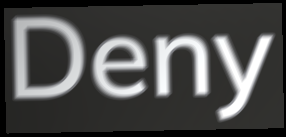
Deny